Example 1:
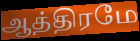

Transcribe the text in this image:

ஆத்திரமே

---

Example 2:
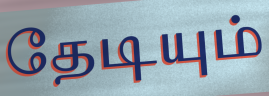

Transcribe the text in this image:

தேடியும்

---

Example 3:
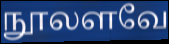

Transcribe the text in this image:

நூலளவே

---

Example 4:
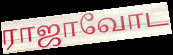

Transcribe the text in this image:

ராஜாவோட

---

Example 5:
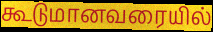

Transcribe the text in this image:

கூடுமானவரையில்